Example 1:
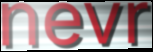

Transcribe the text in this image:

nevr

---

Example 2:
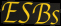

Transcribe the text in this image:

ESBs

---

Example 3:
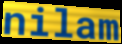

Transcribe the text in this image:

nilam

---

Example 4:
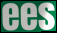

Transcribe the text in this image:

ees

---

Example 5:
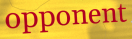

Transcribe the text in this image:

opponent